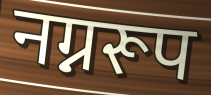
नग्नरूप